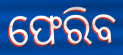
ଫେରିବ